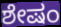
ಶೇಷಂ